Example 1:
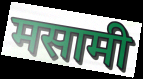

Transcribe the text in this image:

मसामी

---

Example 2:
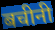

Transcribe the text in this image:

बचीनी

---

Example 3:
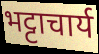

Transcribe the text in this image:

भट्टाचार्य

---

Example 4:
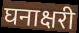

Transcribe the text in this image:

घनाक्षरी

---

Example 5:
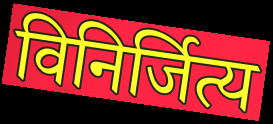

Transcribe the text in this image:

विनिर्जित्य